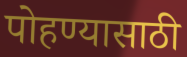
पोहण्यासाठी